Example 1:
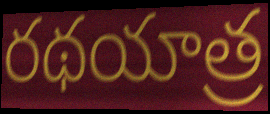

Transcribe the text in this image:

రథయాత్ర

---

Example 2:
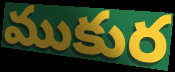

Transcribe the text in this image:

ముకుర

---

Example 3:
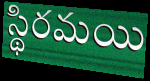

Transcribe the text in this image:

స్థిరమయి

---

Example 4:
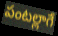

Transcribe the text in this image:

పంటల్లాగే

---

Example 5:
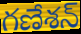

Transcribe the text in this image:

గణేశన్